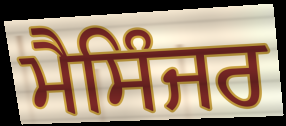
ਮੈਸਿੰਜਰ